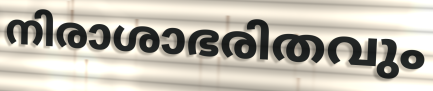
നിരാശാഭരിതവും